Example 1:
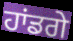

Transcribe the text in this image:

ਹਾਂਡਗੇ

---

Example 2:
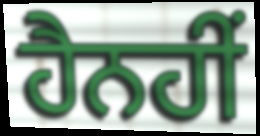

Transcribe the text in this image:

ਹੈਨਹੀਂ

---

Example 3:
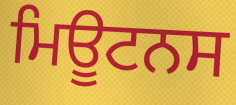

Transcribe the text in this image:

ਮਿਊਟਨਸ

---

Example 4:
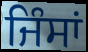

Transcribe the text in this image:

ਜਿੰਸਾਂ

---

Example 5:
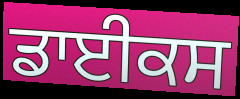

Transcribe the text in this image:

ਡਾਈਕਸ